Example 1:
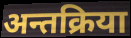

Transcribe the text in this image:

अन्तक्रिया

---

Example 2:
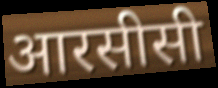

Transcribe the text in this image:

आरसीसी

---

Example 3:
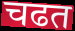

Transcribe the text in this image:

चढत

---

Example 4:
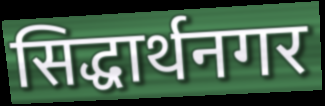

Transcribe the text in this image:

सिद्धार्थनगर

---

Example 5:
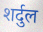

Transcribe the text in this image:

शर्दुल